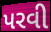
પરવી